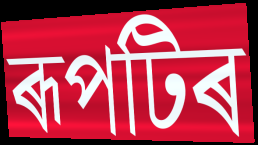
ৰূপটিৰ